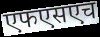
एफएसएच